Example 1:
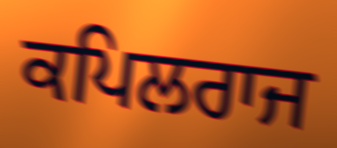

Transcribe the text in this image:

ਕਪਿਲਰਾਜ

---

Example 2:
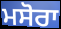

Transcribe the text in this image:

ਮਸੋਰਾ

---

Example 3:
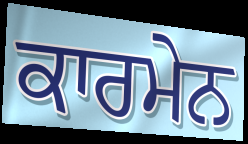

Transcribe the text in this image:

ਕਾਰਮੇਨ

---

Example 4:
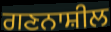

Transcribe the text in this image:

ਗਣਨਾਸ਼ੀਲ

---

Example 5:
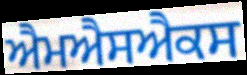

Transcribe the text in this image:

ਐਮਐਸਐਕਸ